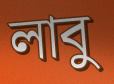
লাবু